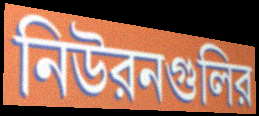
নিউরনগুলির